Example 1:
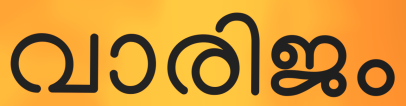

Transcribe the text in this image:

വാരിജം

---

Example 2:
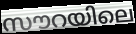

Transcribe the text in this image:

സൗറയിലെ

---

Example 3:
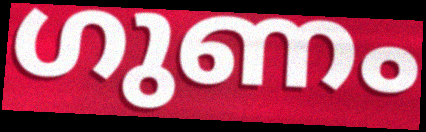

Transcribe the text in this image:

ഗുണം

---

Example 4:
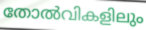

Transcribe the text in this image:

തോൽവികളിലും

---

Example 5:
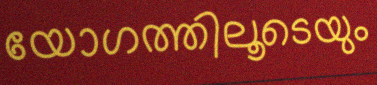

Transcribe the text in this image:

യോഗത്തിലൂടെയും